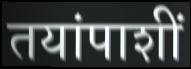
तयांपाशीं